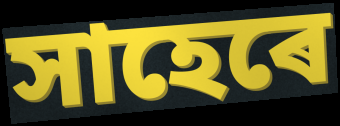
সাহেৰে